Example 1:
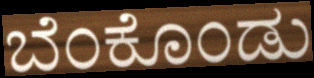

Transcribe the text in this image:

ಬೆಂಕೊಂಡು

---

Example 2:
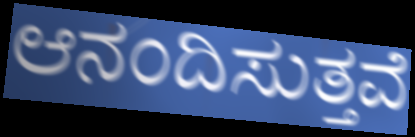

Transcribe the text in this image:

ಆನಂದಿಸುತ್ತವೆ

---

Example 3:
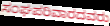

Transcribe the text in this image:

ಸಂಘಪರಿವಾರದವರು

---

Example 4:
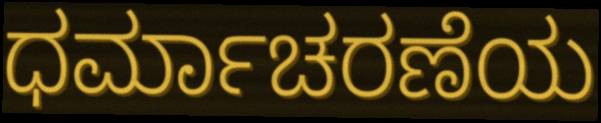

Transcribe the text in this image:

ಧರ್ಮಾಚರಣೆಯ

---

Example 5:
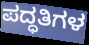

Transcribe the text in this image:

ಪದ್ಧತಿಗಳ